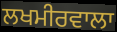
ਲਖਮੀਰਵਾਲਾ